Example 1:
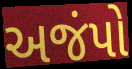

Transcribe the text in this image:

અજંપો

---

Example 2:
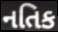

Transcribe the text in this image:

નતિક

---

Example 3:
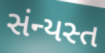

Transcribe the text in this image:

સંન્યસ્ત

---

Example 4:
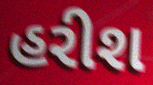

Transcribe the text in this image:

હરીશ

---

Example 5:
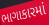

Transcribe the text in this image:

ભાગાકારમાં